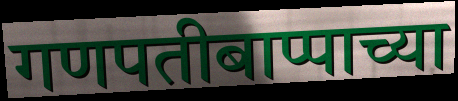
गणपतीबाप्पाच्या